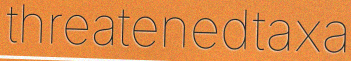
threatenedtaxa